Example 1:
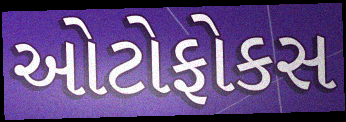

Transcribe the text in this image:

ઓટોફોકસ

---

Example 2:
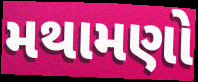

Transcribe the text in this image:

મથામણો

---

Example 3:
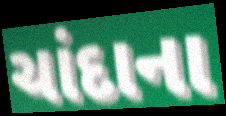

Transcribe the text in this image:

ચાંદાના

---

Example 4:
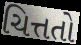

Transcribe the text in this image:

ચિત્તતો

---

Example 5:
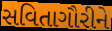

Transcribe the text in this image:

સવિતાગૌરીને